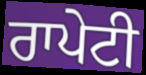
ਰਾਪੇਟੀ